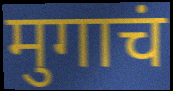
मुगाचं